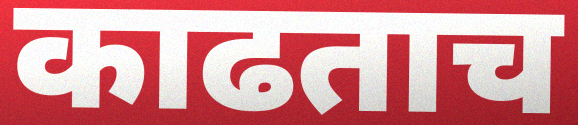
काढताच